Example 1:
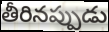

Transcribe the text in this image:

తీరినప్పుడు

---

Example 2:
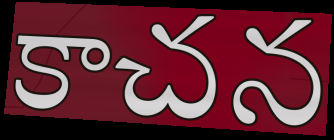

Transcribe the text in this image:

కాచన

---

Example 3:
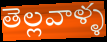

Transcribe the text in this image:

తెల్లవాళ్ళ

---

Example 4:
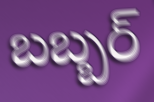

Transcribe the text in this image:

బబ్బర్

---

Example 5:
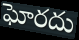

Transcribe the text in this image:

ఘోరదు